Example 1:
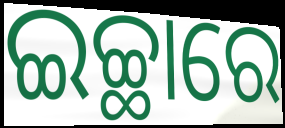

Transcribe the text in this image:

ଇଚ୍ଛାରେ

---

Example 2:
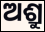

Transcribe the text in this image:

ଅଶ୍ରୁ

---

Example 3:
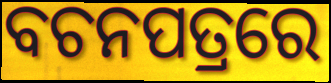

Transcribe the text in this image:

ବଚନପତ୍ରରେ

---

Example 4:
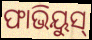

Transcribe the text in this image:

ଫାଭିୟୁସ୍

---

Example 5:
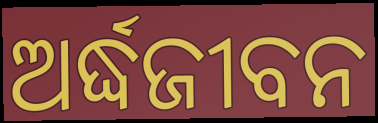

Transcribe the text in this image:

ଅର୍ଦ୍ଧଜୀବନ